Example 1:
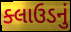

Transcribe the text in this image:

ક્લાઉડનું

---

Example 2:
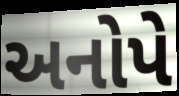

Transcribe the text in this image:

અનોપે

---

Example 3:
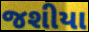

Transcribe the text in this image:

જશીયા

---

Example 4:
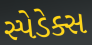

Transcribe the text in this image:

સ્પેડેક્સ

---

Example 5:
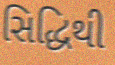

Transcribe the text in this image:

સિદ્ધિથી